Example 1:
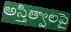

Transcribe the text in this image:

అస్తిత్వాలపై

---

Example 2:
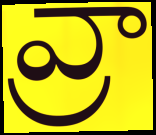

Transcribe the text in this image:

వ్రా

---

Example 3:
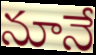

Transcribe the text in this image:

నూనే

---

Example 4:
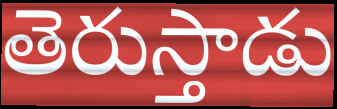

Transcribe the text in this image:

తెరుస్తాడు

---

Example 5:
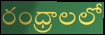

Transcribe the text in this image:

రంధ్రాలలో